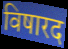
विषारद